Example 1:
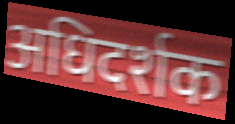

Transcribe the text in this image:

अधिदर्शक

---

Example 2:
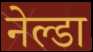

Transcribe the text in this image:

नेल्डा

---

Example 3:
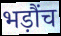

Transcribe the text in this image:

भड़ौंच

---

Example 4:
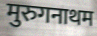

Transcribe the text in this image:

मुरुगनाथम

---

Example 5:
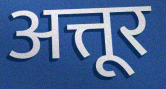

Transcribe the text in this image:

अत्तूर